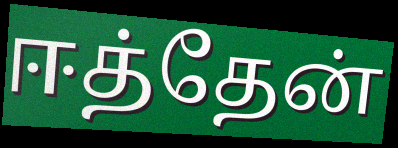
ஈத்தேன்